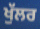
ਖੁੱਲਰ